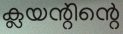
ക്ലയന്റിന്റെ